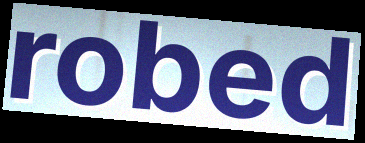
robed